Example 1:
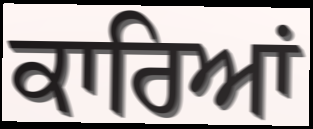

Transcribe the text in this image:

ਕਾਰਿਆਂ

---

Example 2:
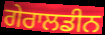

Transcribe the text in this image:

ਗੇਰਾਲਡੀਨ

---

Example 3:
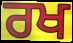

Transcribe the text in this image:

ਰਖ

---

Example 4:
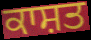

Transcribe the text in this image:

ਕਾਸ਼ਤ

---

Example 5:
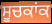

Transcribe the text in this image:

ਸੂਚਕਾਂਕ